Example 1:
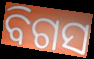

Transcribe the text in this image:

ବିଗସ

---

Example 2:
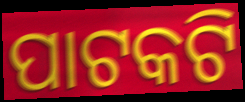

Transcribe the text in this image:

ପାଟକଟି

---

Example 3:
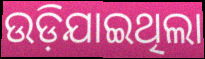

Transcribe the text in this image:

ଉଡ଼ିଯାଇଥିଲା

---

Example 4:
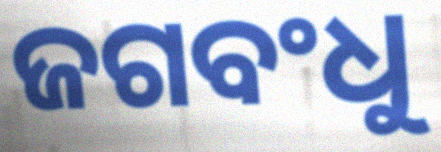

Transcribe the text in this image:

ଜଗବଂଧୁ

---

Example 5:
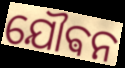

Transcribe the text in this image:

ଯୌଵନ